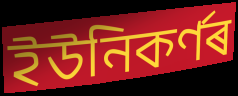
ইউনিকৰ্ণৰ